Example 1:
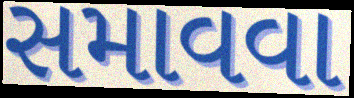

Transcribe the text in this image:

સમાવવા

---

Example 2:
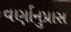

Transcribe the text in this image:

વર્ણાનુપ્રાસ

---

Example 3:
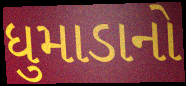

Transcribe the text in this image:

ધુમાડાનો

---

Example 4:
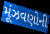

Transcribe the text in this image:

મૂંઝવણોની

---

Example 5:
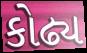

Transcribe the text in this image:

કોઢ્ય